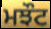
ਮਝੌਟ